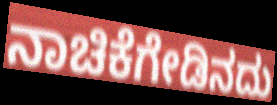
ನಾಚಿಕೆಗೇಡಿನದು